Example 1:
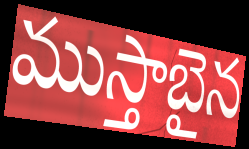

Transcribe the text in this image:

ముస్తాబైన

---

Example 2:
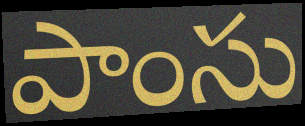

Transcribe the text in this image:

పాంసు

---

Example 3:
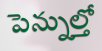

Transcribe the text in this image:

పెన్నుల్తో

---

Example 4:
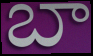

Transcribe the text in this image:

బా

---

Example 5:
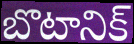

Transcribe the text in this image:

బొటానిక్